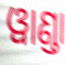
ୱାଣ୍ଡା